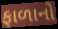
ફાળાનો